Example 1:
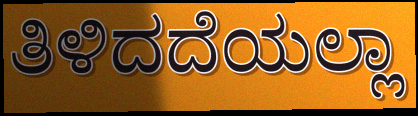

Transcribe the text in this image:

ತಿಳಿದದೆಯಲ್ಲಾ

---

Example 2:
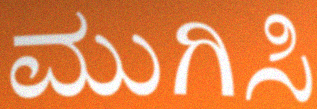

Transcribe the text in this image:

ಮುಗಿಸಿ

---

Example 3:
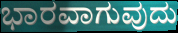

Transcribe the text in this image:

ಭಾರವಾಗುವುದು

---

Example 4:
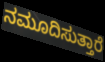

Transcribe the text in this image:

ನಮೂದಿಸುತ್ತಾರೆ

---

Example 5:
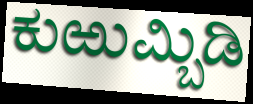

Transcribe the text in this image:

ಕುಱುಮ್ಬಿಡಿ